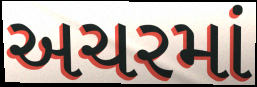
અચરમાં